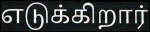
எடுக்கிறார்